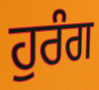
ਹੁਰੰਗ